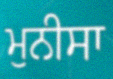
ਮੁਨੀਸਾ